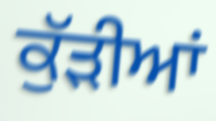
ਕੁੱੜੀਆਂ